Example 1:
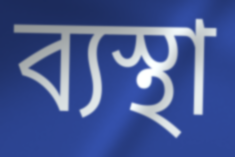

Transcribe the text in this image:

ব্যস্থা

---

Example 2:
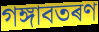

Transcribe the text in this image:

গঙ্গাবতৰণ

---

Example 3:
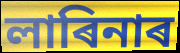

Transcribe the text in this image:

লাৰিনাৰ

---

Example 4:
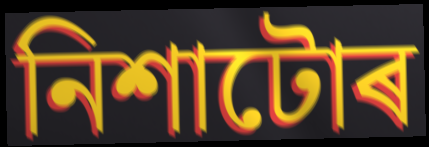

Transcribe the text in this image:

নিশাটোৰ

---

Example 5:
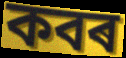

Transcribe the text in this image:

কবৰ